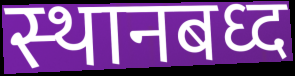
स्थानबध्द